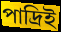
পাদ্রিই